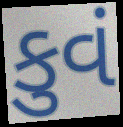
કુવં